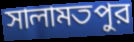
সালামতপুর